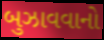
બુઝાવવાનો